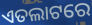
ଏତଲାଟରେ